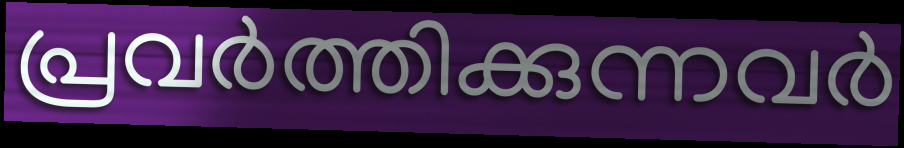
പ്രവർത്തിക്കുന്നവർ